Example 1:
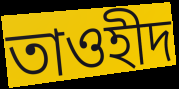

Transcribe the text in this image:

তাওহীদ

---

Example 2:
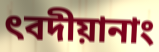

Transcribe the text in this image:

ৎবদীয়ানাং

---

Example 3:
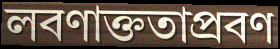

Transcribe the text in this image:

লবণাক্ততাপ্রবণ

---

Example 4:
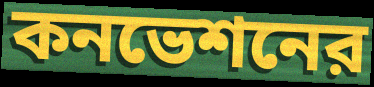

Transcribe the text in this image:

কনভেশনের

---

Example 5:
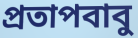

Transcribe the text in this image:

প্রতাপবাবু